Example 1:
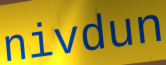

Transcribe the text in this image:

nivdun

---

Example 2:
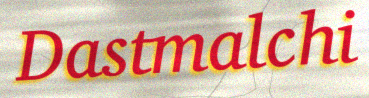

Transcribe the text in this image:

Dastmalchi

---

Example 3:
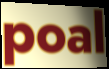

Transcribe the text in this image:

poal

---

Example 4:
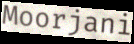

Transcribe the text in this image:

Moorjani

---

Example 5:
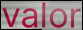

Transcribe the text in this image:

valor